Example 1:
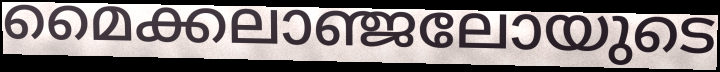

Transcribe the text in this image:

മൈക്കലാഞ്ജലോയുടെ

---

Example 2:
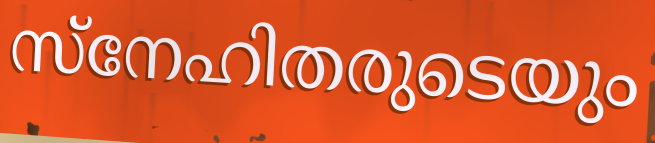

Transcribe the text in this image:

സ്നേഹിതരുടെയും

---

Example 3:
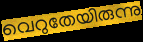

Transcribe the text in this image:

വെറുതേയിരുന്നു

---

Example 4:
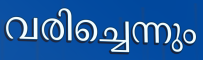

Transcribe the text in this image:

വരിച്ചെന്നും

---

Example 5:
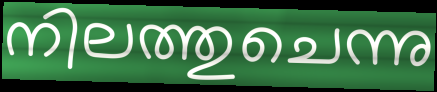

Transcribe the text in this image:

നിലത്തുചെന്നു